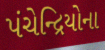
પંચેન્દ્રિયોના